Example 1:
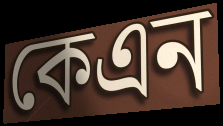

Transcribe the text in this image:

কেএন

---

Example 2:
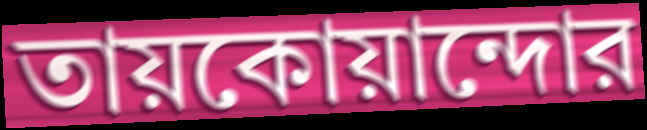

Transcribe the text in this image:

তায়কোয়ান্দোর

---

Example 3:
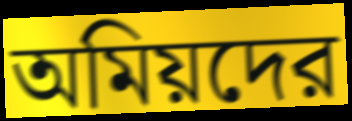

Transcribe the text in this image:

অমিয়দের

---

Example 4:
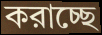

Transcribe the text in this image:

করাচ্ছে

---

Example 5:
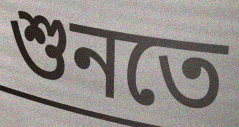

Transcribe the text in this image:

শুনতে